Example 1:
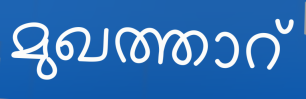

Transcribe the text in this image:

മുഖത്താറ്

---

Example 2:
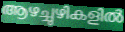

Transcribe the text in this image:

ആഴച്ചുഴികളിൽ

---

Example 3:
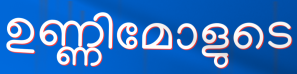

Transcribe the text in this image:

ഉണ്ണിമോളുടെ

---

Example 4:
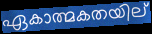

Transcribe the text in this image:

ഏകാത്മകതയില്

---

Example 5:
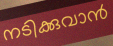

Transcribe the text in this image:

നടിക്കുവാൻ